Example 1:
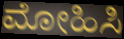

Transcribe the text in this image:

ಮೋಹಿಸಿ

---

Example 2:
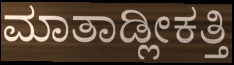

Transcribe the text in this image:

ಮಾತಾಡ್ಲೀಕತ್ತಿ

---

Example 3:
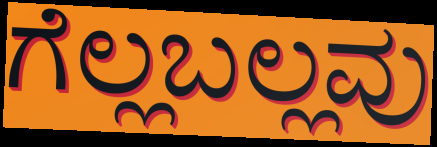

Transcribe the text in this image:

ಗೆಲ್ಲಬಲ್ಲವು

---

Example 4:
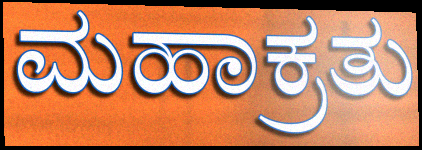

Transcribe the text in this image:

ಮಹಾಕ್ರತು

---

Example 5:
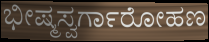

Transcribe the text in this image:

ಭೀಷ್ಮಸ್ವರ್ಗಾರೋಹಣ